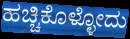
ಹಚ್ಚಿಕೊಳ್ಳೋದು